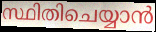
സ്ഥിതിചെയ്യാൻ